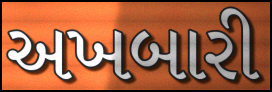
અખબારી